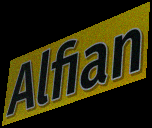
Alfian